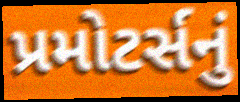
પ્રમોટર્સનું